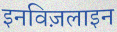
इनविज़लाइन